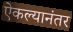
ऐकल्यानंतर